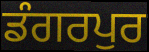
ਡੰਗਰਪੁਰ